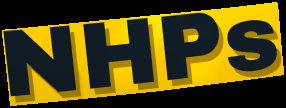
NHPs